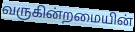
வருகின்றமையின்